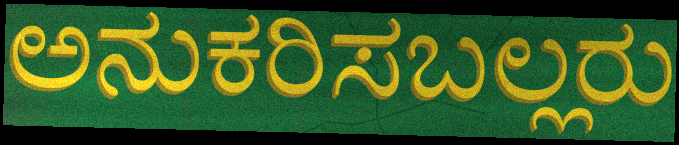
ಅನುಕರಿಸಬಲ್ಲರು